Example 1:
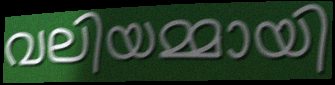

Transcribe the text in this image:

വലിയമ്മായി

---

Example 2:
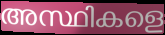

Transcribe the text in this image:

അസ്ഥികളെ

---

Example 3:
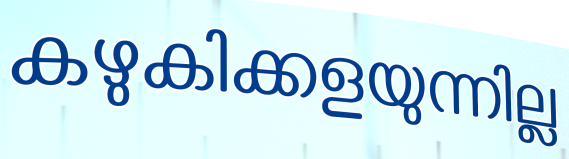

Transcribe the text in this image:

കഴുകിക്കളയുന്നില്ല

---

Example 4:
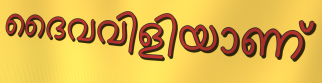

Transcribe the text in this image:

ദൈവവിളിയാണ്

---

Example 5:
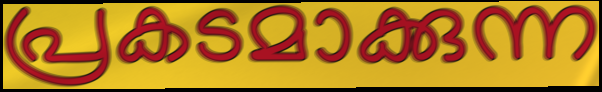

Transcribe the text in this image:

പ്രകടമാക്കുന്ന